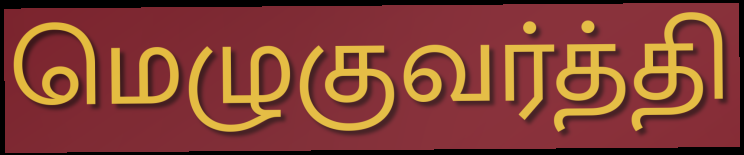
மெழுகுவர்த்தி